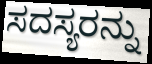
ಸದಸ್ಯರನ್ನು